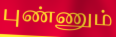
புண்ணும்